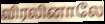
விரலினாலே